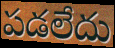
పడలేదు